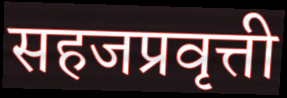
सहजप्रवृत्ती